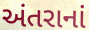
અંતરાનાં